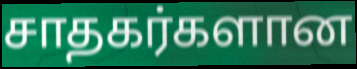
சாதகர்களான